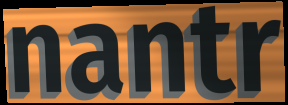
nantr